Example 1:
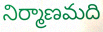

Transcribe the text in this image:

నిర్మాణమది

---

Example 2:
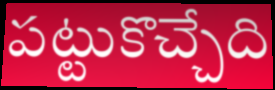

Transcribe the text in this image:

పట్టుకొచ్చేది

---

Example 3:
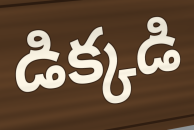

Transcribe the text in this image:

డిక్కడి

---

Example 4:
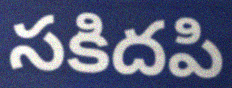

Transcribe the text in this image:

సకిదపి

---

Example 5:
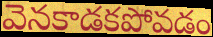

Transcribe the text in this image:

వెనకాడకపోవడం